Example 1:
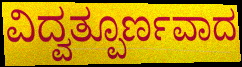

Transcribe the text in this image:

ವಿದ್ವತ್ಪೂರ್ಣವಾದ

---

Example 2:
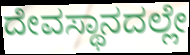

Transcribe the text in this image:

ದೇವಸ್ಥಾನದಲ್ಲೇ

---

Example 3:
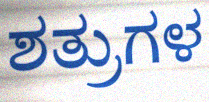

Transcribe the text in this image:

ಶತ್ರುಗಳ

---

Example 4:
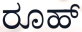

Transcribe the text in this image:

ರೂಹ್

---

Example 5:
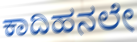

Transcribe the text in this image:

ಕಾದಿಹನಲೇ